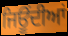
ਜਿਊਂਦੀਆਂ